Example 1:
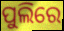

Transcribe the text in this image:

ପୁଲିରେ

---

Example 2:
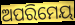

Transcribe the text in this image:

ଅପରିମେୟ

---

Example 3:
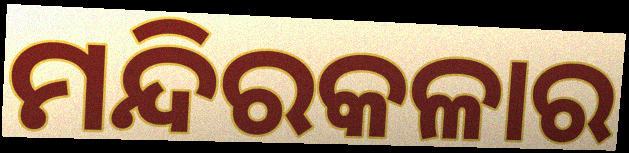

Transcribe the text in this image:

ମନ୍ଦିରକଳାର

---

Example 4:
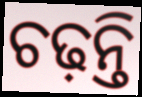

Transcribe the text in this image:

ଚଢ଼ନ୍ତି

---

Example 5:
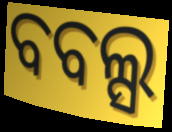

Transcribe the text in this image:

ବବଲ୍ସ